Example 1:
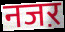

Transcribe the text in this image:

नजऱ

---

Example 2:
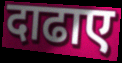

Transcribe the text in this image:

दाढाए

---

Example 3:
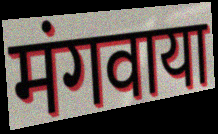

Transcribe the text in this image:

मंगवाया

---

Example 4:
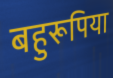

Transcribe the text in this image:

बहुरूपिया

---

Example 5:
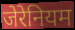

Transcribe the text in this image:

जेरेनियम